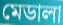
মেডালা